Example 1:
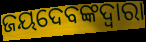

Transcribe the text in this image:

ଜୟଦେବଙ୍କଦ୍ୱାରା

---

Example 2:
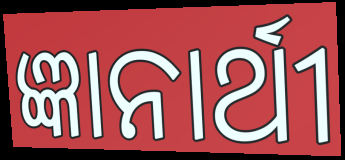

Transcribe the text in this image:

ଜ୍ଞାନାର୍ଥୀ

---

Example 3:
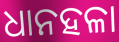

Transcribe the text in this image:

ଧାନହଳା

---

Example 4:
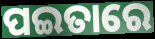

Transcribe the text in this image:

ପଇତାରେ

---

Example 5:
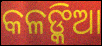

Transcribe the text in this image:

କଳଙ୍କିଆ